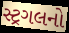
સ્ટ્રગલનો